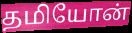
தமியோன்